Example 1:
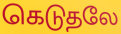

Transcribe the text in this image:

கெடுதலே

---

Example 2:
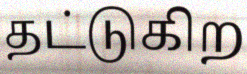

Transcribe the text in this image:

தட்டுகிற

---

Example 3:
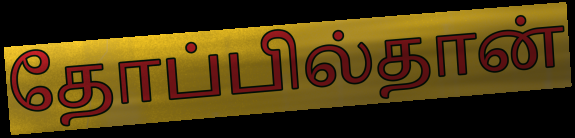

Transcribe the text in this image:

தோப்பில்தான்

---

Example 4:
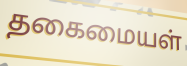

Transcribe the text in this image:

தகைமையள்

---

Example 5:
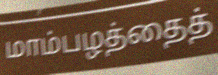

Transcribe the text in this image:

மாம்பழத்தைத்